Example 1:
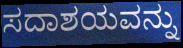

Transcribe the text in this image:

ಸದಾಶಯವನ್ನು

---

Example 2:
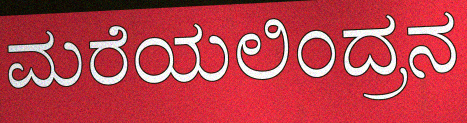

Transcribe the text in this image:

ಮರೆಯಲಿಂದ್ರನ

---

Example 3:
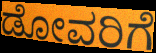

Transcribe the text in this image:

ಡೋವರಿಗೆ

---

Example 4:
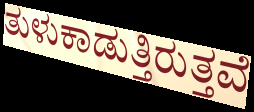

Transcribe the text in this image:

ತುಳುಕಾಡುತ್ತಿರುತ್ತವೆ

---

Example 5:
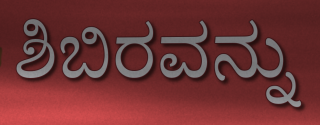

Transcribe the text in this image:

ಶಿಬಿರವನ್ನು